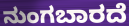
ನುಂಗಬಾರದೆ